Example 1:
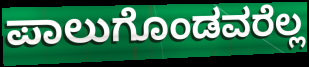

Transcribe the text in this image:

ಪಾಲುಗೊಂಡವರೆಲ್ಲ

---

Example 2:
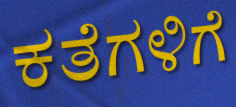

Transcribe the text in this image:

ಕತೆಗಳಿಗೆ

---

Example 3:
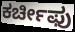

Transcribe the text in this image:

ಕರ್ಚೀಫು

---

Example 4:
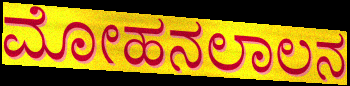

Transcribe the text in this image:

ಮೋಹನಲಾಲನ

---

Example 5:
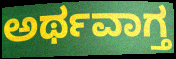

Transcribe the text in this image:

ಅರ್ಥವಾಗ್ತ